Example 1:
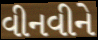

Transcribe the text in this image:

વીનવીને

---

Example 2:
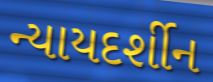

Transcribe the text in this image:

ન્યાયદર્શીન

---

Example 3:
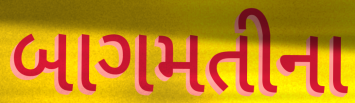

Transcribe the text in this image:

બાગમતીના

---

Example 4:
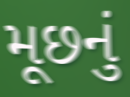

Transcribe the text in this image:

મૂછનું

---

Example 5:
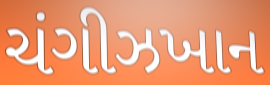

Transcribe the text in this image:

ચંગીઝખાન